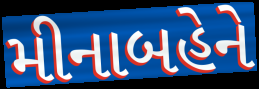
મીનાબહેને